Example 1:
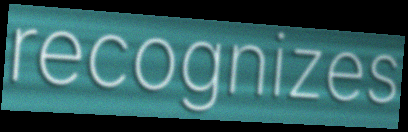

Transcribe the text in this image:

recognizes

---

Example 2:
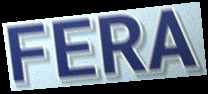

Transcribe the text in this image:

FERA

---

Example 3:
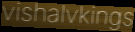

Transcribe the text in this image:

vishalvkings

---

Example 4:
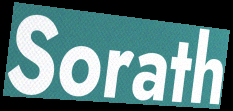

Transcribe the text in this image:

Sorath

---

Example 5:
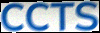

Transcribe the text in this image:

CCTS